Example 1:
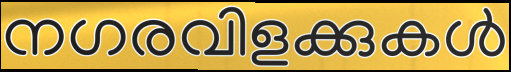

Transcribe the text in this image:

നഗരവിളക്കുകൾ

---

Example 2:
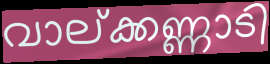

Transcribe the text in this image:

വാല്ക്കണ്ണാടി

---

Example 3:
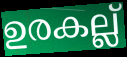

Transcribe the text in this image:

ഉരകല്ല്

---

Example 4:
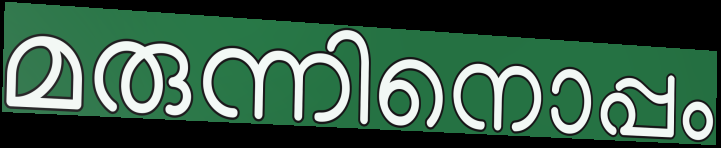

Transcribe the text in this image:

മരുന്നിനൊപ്പം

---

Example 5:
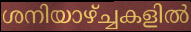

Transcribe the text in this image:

ശനിയാഴ്ച്ചകളിൽ